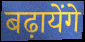
बढ़ायेंगे